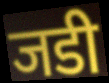
जडी